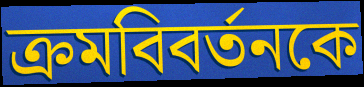
ক্রমবিবর্তনকে